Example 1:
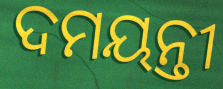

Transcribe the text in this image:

ଦମୟନ୍ତୀ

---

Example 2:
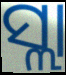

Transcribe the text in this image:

ସ୍ଲା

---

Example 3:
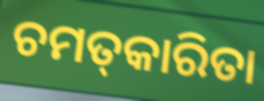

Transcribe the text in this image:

ଚମତ୍‌କାରିତା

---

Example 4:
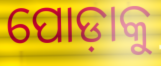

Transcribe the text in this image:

ପୋଡ଼ାକୁ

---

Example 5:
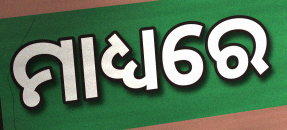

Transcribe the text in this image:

ମାଧ୍ୟରେ